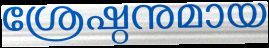
ശ്രേഷ്ഠനുമായ